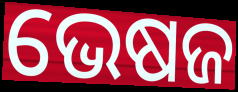
ଭେଷଜ